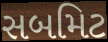
સબમિટ